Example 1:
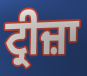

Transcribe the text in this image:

ਟ੍ਰੀਜ਼ਾ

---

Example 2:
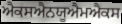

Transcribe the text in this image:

ਐਕਸਐਨਯੂਐਮਐਕਸ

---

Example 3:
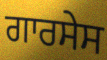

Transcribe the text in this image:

ਗਾਰਸੇਸ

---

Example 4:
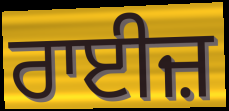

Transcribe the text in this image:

ਰਾਈਜ਼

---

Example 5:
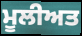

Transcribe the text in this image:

ਮੂਲੀਅਤ